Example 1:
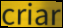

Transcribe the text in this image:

criar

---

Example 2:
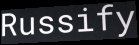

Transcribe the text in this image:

Russify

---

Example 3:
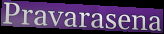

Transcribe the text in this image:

Pravarasena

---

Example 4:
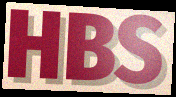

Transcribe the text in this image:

HBS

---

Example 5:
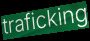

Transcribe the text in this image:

traficking